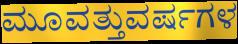
ಮೂವತ್ತುವರ್ಷಗಳ